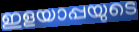
ഇളയാപ്പയുടെ